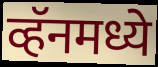
व्हॅनमध्ये